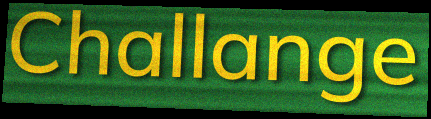
Challange